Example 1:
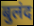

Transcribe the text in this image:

बुलंद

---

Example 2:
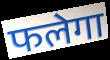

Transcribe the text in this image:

फलेगा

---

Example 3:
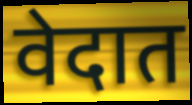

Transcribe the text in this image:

वेदात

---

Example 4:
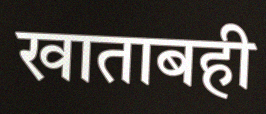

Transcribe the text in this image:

खाताबही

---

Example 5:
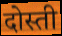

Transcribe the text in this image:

दोस्ती